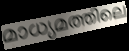
മാധ്യമത്തിലെ